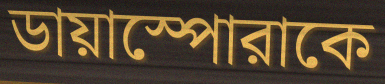
ডায়াস্পোরাকে